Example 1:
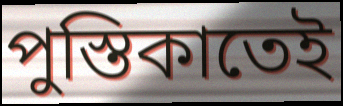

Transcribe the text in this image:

পুস্তিকাতেই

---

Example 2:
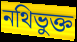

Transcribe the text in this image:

নথিভুক্ত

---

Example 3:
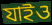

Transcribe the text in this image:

যাইও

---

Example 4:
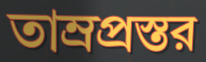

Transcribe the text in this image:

তাম্রপ্রস্তর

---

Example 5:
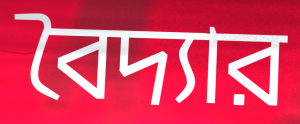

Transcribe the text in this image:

বৈদ্যার